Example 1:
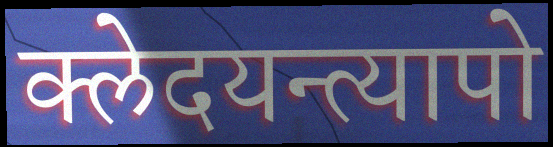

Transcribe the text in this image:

क्लेदयन्त्यापो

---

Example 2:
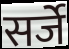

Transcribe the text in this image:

सर्जे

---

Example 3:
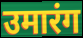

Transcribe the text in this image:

उमारंग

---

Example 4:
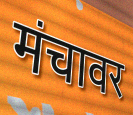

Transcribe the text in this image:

मंचावर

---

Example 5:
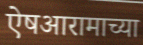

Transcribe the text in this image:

ऐषआरामाच्या